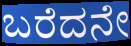
ಬರೆದನೇ